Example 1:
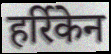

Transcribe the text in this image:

हर्रिकेन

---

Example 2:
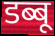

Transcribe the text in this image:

डब्बू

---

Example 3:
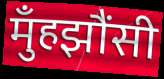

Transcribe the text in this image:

मुँहझौंसी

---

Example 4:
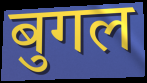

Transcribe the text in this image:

बुगल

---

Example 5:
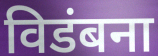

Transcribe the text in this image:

विडंबना